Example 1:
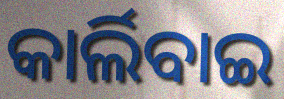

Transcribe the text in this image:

କାର୍ଲିବାଇ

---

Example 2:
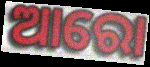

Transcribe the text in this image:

ଆରୋ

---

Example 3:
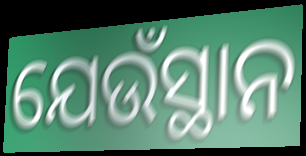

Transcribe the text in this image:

ଯେଉଁସ୍ଥାନ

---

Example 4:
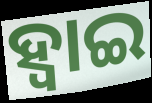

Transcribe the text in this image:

ହ୍ଵାଇ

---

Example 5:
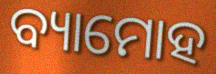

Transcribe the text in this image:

ବ୍ୟାମୋହ